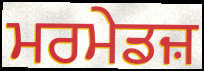
ਮਰਮੇਡਜ਼